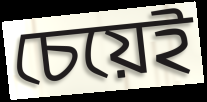
চেয়েই